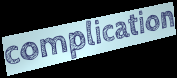
complication